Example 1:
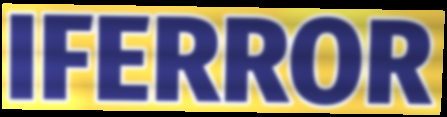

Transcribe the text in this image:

IFERROR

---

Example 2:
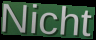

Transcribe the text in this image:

Nicht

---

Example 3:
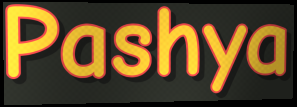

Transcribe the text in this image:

Pashya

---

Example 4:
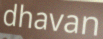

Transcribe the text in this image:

dhavan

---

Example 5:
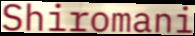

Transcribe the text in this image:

Shiromani